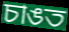
চাঙত